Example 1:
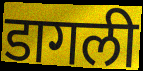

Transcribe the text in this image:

डागली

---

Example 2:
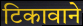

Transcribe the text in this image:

टिकावाने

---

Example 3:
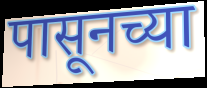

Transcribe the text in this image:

पासूनच्या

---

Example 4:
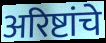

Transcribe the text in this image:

अरिष्टांचे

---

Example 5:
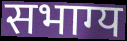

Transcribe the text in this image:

सभाग्य